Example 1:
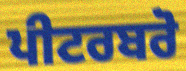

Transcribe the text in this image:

ਪੀਟਰਬਰੋ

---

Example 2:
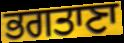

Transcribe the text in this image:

ਭਗਤਾਣਾ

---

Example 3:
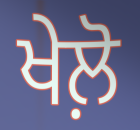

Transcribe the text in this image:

ਖੇਲ਼ੋ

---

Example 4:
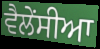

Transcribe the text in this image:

ਵੈਲੇਂਸੀਆ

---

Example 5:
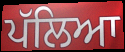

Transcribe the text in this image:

ਪੱਲਿਆ